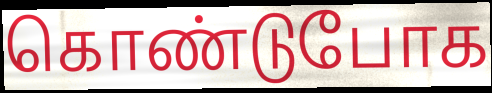
கொண்டுபோக